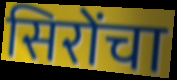
सिरोंचा